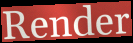
Render